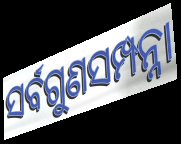
ସର୍ବଗୁଣସମ୍ପନ୍ନା